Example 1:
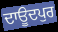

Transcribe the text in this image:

ਦਾਊਦਪੁਰ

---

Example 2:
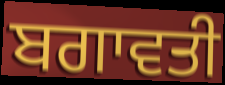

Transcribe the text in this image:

ਬਗਾਵਤੀ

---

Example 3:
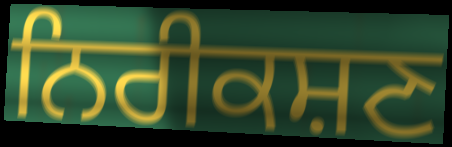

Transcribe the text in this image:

ਨਿਰੀਕਸ਼ਣ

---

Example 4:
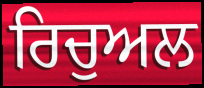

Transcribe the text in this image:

ਰਿਚੁਅਲ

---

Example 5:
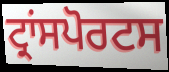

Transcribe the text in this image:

ਟ੍ਰਾਂਸਪੋਰਟਸ